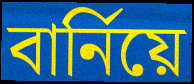
বার্নিয়ে